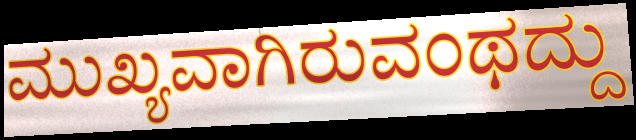
ಮುಖ್ಯವಾಗಿರುವಂಥದ್ದು